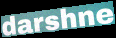
darshne